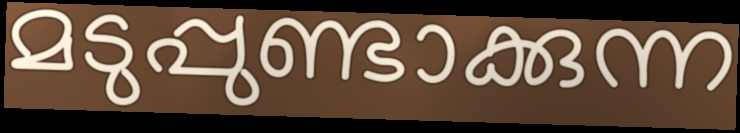
മടുപ്പുണ്ടാക്കുന്ന